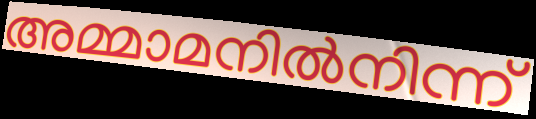
അമ്മാമനിൽനിന്ന്